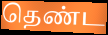
தெண்ட